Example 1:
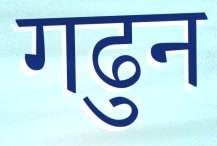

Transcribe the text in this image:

गढुन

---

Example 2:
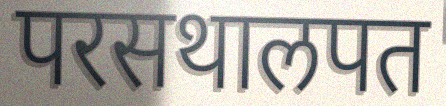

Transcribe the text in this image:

परसथालपत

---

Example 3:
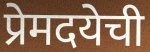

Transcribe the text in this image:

प्रेमदयेची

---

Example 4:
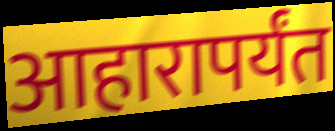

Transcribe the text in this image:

आहारापर्यंत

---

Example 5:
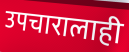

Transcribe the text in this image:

उपचारालाही